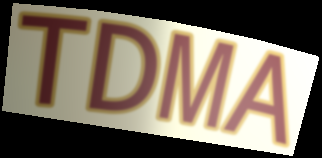
TDMA